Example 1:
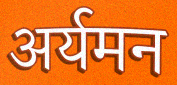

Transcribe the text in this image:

अर्यमन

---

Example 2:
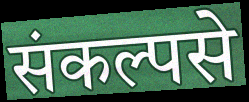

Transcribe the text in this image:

संकल्पसे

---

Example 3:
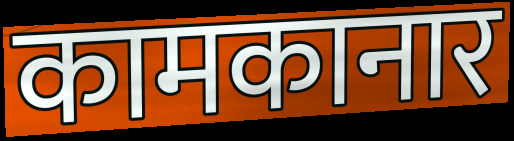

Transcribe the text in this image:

कामकानार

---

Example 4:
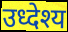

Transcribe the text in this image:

उध्देश्य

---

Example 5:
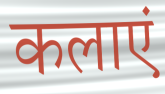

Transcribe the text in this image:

कलाएं